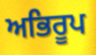
ਅਭਿਰੂਪ